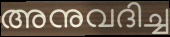
അനുവദിച്ച